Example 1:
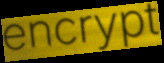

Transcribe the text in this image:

encrypt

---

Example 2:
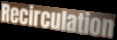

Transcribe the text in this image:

Recirculation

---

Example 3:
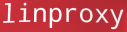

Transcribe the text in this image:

linproxy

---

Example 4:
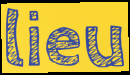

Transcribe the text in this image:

lieu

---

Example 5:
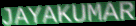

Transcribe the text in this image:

JAYAKUMAR